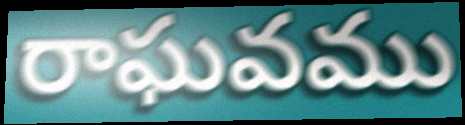
రాఘవము